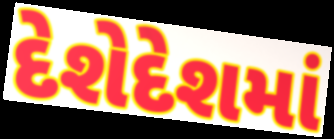
દેશેદેશમાં